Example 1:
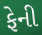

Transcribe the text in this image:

ફેની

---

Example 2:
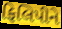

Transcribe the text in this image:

ફિલિપીને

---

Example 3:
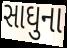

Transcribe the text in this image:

સાઘુના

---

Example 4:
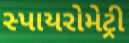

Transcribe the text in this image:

સ્પાયરોમેટ્રી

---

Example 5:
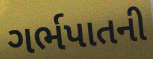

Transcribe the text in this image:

ગર્ભપાતની